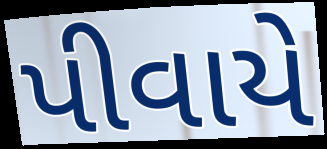
પીવાયે